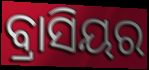
ବ୍ରାସିୟର